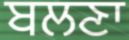
ਬਲਣਾ